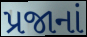
પ્રજાનાં